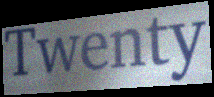
Twenty